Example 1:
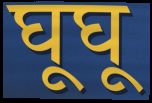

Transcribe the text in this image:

घूघू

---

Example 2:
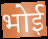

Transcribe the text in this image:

भोई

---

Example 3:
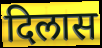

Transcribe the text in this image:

दिलास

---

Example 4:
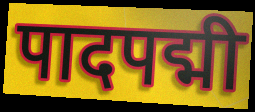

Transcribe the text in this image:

पादपद्मी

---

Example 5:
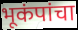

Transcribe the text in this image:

भूकंपांचा